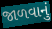
જાળવાનું